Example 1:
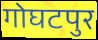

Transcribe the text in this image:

गोघटपुर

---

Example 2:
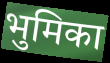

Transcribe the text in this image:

भुमिका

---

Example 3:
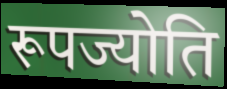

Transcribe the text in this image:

रूपज्योति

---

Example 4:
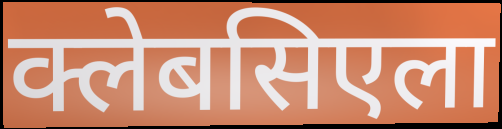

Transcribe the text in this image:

क्लेबसिएला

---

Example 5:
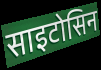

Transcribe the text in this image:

साइटोसिन